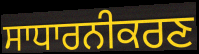
ਸਾਧਾਰਨੀਕਰਣ